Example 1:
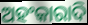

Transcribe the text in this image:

ଅହଂକାରାଦି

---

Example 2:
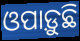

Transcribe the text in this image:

ଓପାଡ଼ୁଛି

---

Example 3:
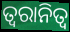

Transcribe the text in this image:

ତ୍ୱରାନିତ୍ଵ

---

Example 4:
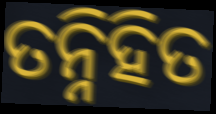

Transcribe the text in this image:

ତନ୍ନିହିତ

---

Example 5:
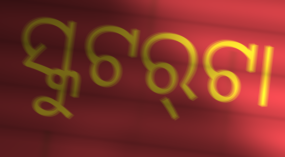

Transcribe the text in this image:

ସ୍କୁଟର୍‌ଟା